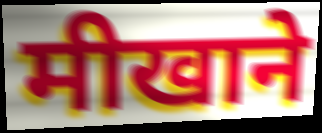
मीखाने